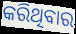
କରିଥିବାର